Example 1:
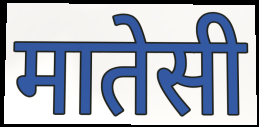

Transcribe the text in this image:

मातेसी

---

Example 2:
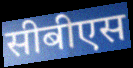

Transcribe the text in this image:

सीबीएस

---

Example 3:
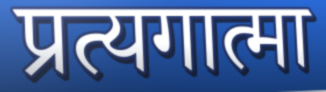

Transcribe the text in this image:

प्रत्यगात्मा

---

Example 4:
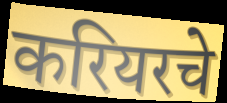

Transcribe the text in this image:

करियरचे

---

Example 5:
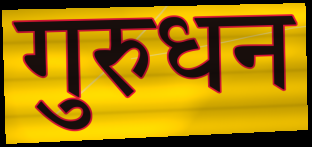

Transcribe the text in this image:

गुरुधन